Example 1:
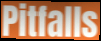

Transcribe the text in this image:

Pitfalls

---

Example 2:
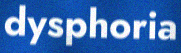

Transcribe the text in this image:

dysphoria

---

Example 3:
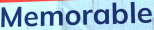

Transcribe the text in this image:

Memorable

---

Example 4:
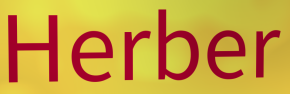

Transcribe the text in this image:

Herber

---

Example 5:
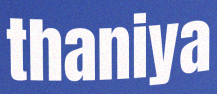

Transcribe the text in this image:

thaniya